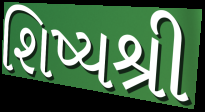
શિષ્યશ્રી